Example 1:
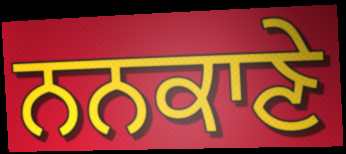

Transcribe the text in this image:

ਨਨਕਾਣੇ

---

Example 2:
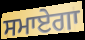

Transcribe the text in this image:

ਸਮਾਏਗਾ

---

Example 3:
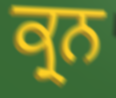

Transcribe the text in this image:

ਕ੍ਰਨ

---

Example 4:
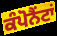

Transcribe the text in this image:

ਕੰਪੋਨੈਂਟਾਂ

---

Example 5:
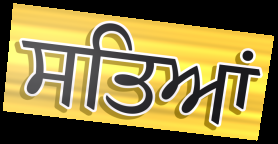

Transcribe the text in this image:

ਸਤਿਆਂ